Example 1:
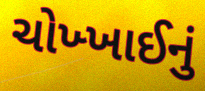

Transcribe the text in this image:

ચોખ્ખાઈનું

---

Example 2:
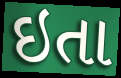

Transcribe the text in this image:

ઇતા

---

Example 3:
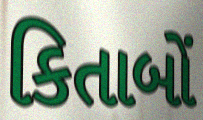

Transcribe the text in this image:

કિતાબોં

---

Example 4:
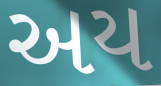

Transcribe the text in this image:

અય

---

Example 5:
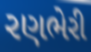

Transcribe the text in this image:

રણભેરી